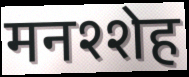
मनश्शेह